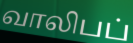
வாலிபப்